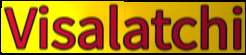
Visalatchi